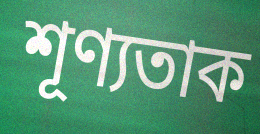
শূণ্যতাক